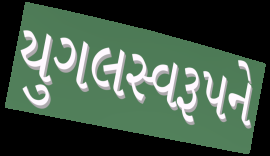
યુગલસ્વરૂપને